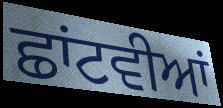
ਛਾਂਟਵੀਆਂ